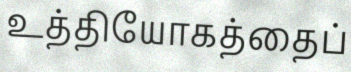
உத்தியோகத்தைப்